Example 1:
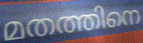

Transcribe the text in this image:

മതത്തിനെ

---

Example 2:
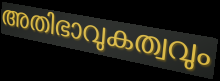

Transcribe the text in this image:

അതിഭാവുകത്വവും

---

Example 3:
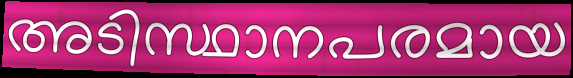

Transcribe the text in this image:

അടിസ്ഥാനപരമായ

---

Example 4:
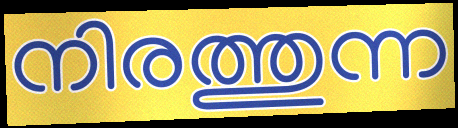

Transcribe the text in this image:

നിരത്തുന്ന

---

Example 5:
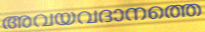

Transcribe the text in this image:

അവയവദാനത്തെ